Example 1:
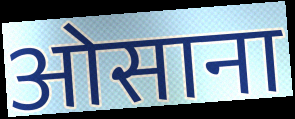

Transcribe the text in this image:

ओसाना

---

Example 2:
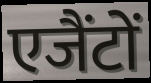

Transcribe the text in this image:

एजैंटों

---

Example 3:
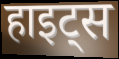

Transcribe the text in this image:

हाइट्स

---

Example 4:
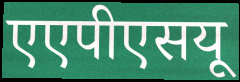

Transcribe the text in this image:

एएपीएसयू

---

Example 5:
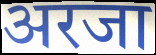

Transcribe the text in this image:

अरजा